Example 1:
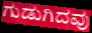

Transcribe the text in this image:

ಗುಡುಗಿದವು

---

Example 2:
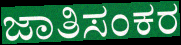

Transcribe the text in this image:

ಜಾತಿಸಂಕರ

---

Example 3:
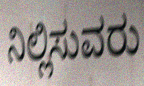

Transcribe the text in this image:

ನಿಲ್ಲಿಸುವರು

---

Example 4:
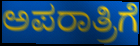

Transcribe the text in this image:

ಅಪರಾತ್ರಿಗೆ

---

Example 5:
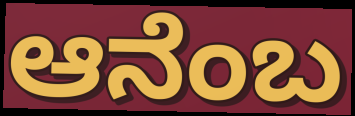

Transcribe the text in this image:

ಆನೆಂಬ